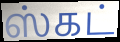
ஸ்கட்